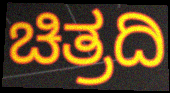
ಚಿತ್ರದಿ